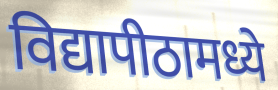
विद्यापीठामध्ये